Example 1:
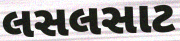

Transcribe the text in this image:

લસલસાટ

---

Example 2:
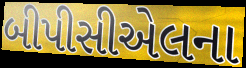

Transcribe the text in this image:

બીપીસીએલના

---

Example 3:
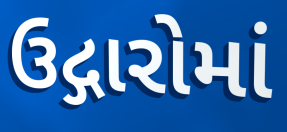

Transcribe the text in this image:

ઉદ્ગારોમાં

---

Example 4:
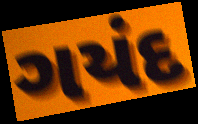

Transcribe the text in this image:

ગયંદ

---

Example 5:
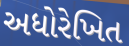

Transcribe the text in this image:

અધોરેખિત